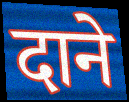
दाने